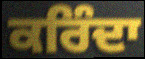
ਕਰਿੰਦਾ